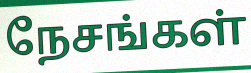
நேசங்கள்